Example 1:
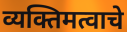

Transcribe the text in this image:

व्यक्तिमत्वाचे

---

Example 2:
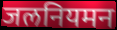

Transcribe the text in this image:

जलनियमन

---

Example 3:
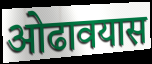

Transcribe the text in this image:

ओढावयास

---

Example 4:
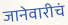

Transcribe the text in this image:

जानेवारीचं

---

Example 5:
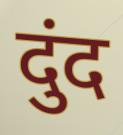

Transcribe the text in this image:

दुंद